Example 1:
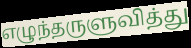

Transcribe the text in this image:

எழுந்தருளுவித்து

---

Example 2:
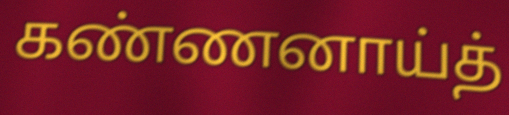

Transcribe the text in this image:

கண்ணனாய்த்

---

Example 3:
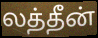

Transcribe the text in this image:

லத்தீன்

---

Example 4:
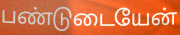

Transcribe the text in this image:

பண்டுடையேன்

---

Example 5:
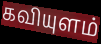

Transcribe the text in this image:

கவியுளம்